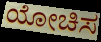
ಯೋಚಿಸ